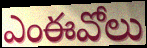
ఎంఈవోలు